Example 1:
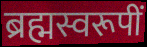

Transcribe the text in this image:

ब्रह्मस्वरूपीं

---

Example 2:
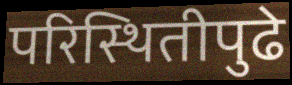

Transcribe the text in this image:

परिस्थितीपुढे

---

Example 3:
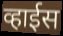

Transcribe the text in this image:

व्हाईस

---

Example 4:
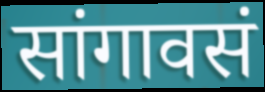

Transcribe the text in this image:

सांगावसं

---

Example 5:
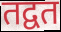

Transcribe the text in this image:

तद्वत